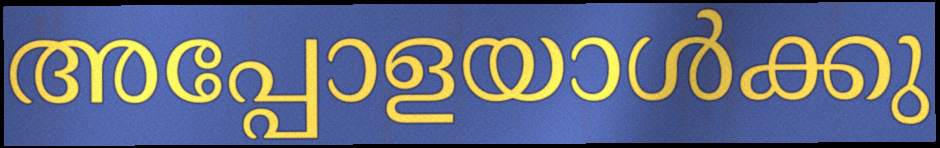
അപ്പോളയാൾക്കു